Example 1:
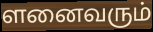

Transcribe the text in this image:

ளனைவரும்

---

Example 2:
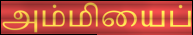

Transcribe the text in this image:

அம்மியைப்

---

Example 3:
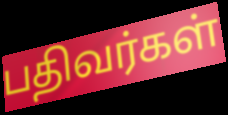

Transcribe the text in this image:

பதிவர்கள்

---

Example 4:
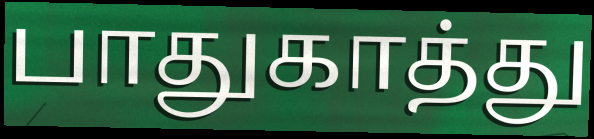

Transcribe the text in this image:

பாதுகாத்து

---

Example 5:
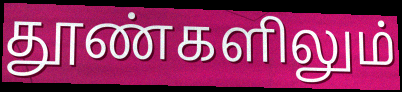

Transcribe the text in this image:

தூண்களிலும்